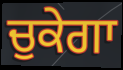
ਚੁਕੇਗਾ